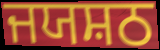
ਜਯਸ਼ਠ